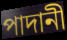
পাদানী